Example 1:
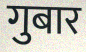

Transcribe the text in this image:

गुबार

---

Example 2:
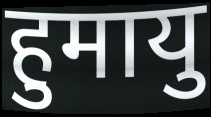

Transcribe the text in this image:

हुमायु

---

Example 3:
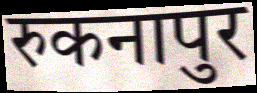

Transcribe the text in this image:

रुकनापुर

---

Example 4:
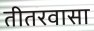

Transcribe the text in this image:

तीतरवासा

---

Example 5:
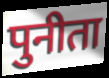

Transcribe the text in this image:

पुनीता